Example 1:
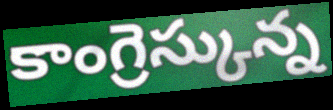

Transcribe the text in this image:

కాంగ్రెస్కున్న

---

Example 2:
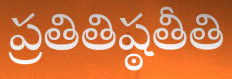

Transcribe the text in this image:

ప్రతితిష్ఠతీతి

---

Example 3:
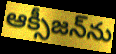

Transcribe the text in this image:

ఆక్సీజన్‌ను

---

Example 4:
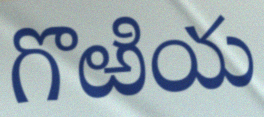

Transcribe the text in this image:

గొఱియ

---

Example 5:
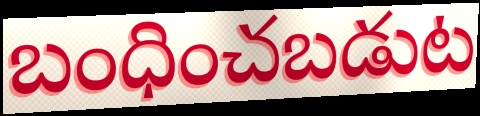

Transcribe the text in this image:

బంధించబడుట